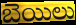
బెయిలు